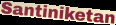
Santiniketan